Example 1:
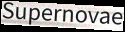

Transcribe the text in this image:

Supernovae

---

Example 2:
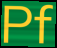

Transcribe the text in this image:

Pf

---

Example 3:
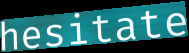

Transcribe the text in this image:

hesitate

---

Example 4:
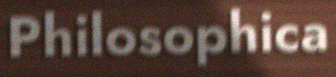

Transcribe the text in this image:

Philosophica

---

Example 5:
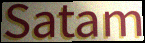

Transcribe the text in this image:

Satam